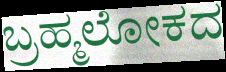
ಬ್ರಹ್ಮಲೋಕದ